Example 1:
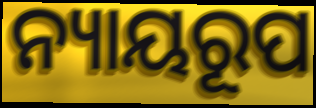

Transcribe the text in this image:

ନ୍ୟାୟରୂପ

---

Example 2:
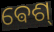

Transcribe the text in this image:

ଵେଶ୍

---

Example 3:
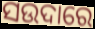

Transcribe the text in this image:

ସଉଦାରେ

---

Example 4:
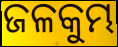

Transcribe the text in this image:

ଜଳକୁମ୍ଭ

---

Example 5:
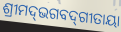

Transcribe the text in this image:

ଶ୍ରୀମଦ୍‌ଭଗବଦ୍‌ଗୀତାୟା